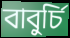
বাবুর্চি